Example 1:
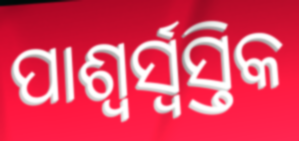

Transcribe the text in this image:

ପାଶ୍ୱର୍ସ୍ୱସ୍ତିକ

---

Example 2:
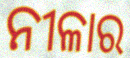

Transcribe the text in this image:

ନୀଳାର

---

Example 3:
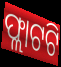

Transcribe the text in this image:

ଫ୍ଲାଟଟି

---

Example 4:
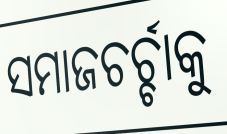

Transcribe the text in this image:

ସମାଜଚର୍ଚ୍ଚାକୁ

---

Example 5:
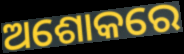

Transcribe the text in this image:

ଅଶୋକରେ